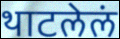
थाटलेलं